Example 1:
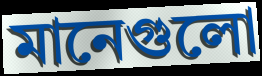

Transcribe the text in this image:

মানেগুলো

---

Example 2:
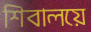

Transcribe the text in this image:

শিবালয়ে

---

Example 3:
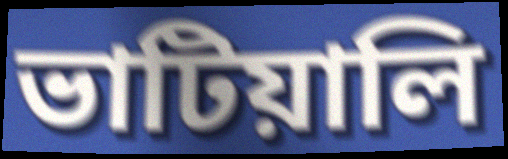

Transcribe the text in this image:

ভাটিয়ালি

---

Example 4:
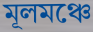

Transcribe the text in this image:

মূলমঞ্চে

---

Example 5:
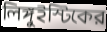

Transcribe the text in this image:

লিঙ্গুইস্টিকের